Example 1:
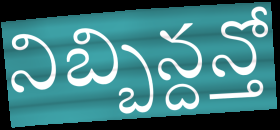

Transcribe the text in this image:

నిబ్బిన్దన్తో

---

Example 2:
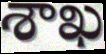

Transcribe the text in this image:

శాఖ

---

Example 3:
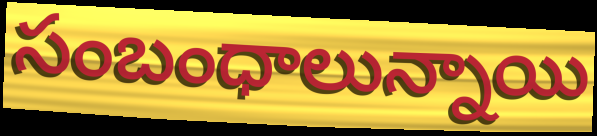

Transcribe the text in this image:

సంబంధాలున్నాయి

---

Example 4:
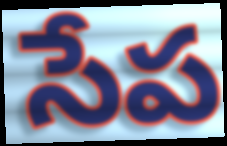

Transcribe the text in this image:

సేప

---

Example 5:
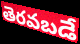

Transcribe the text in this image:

తెరవబడే